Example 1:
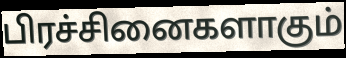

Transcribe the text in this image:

பிரச்சினைகளாகும்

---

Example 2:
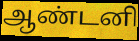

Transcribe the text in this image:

ஆண்டனி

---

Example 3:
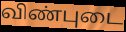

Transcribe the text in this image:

விண்புடை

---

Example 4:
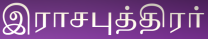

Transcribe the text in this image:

இராசபுத்திரர்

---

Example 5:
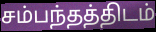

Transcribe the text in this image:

சம்பந்தத்திடம்